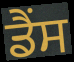
ਡੈਂਸ